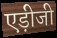
एड़ीजी